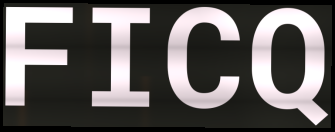
FICQ